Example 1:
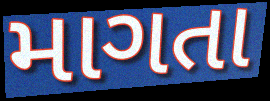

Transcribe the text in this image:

માગતા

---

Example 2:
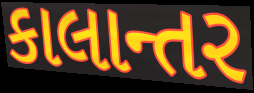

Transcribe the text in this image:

કાલાન્તર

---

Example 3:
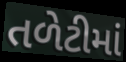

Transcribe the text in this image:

તળેટીમાં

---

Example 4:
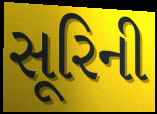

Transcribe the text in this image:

સૂરિની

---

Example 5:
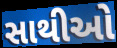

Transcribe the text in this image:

સાથીઓ